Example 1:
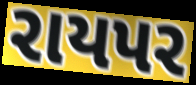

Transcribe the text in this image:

રાયપર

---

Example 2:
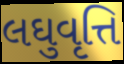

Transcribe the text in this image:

લઘુવૃત્તિ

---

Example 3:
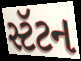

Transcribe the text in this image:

સ્ટૅટન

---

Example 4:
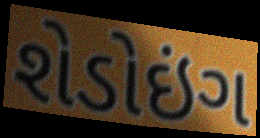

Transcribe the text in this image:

શેડોઇંગ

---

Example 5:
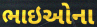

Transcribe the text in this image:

ભાઇઓના